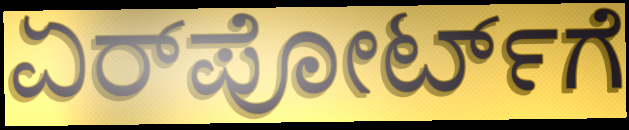
ಏರ್‌ಪೋರ್ಟ್‌ಗೆ